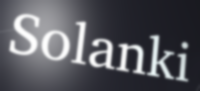
Solanki